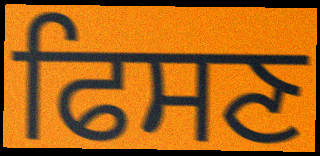
ਫਿਸਣ